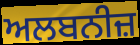
ਅਲਬਨੀਜ਼